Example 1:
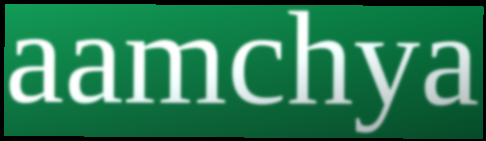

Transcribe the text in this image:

aamchya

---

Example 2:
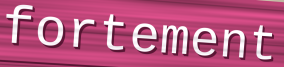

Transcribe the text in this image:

fortement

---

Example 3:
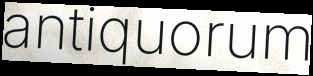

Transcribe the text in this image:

antiquorum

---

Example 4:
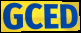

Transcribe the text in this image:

GCED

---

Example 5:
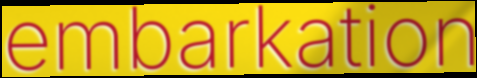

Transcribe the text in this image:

embarkation